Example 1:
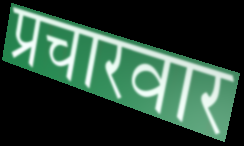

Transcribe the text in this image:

प्रचारवार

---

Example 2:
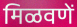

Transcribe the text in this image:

मिळवणें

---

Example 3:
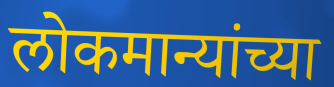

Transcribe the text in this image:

लोकमान्यांच्या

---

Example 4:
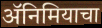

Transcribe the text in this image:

ॲनिमियाचा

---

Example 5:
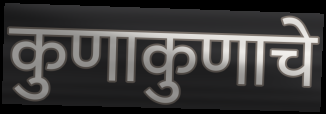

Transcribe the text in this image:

कुणाकुणाचे